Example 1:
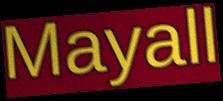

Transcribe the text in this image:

Mayall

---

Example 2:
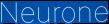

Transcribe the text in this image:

Neurone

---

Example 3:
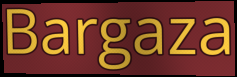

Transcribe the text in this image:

Bargaza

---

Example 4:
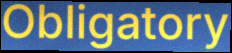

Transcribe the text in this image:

Obligatory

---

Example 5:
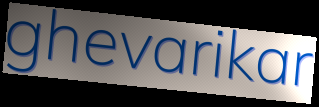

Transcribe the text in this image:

ghevarikar